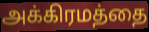
அக்கிரமத்தை